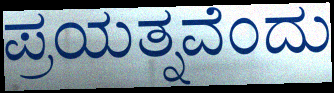
ಪ್ರಯತ್ನವೆಂದು